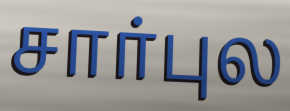
சார்புல